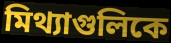
মিথ্যাগুলিকে